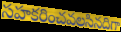
సహకరించవలసినదిగా